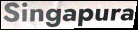
Singapura